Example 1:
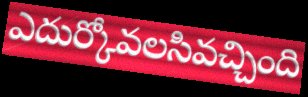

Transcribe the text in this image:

ఎదుర్కోవలసివచ్చింది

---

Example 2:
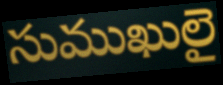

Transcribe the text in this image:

సుముఖులై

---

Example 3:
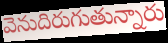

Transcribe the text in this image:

వెనుదిరుగుతున్నారు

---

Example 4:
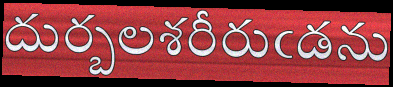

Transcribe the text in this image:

దుర్బలశరీరుఁడను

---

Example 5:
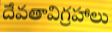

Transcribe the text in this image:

దేవతావిగ్రహాలు